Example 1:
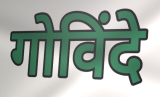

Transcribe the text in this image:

गोविंदे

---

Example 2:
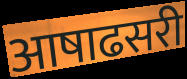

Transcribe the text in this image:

आषाढसरी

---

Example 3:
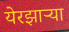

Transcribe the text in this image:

येरझार्‍या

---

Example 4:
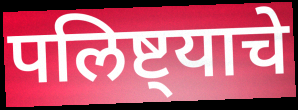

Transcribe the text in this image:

पलिष्ट्याचे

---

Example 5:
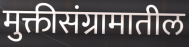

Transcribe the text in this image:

मुक्तीसंग्रामातील